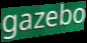
gazebo